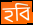
হবি